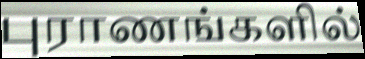
புராணங்களில்